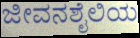
ಜೀವನಶೈಲಿಯ